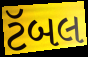
ટૅબલ